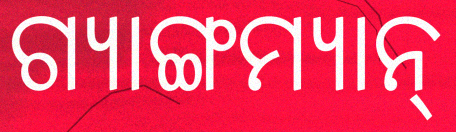
ଗ୍ୟାଙ୍ଗମ୍ୟାନ୍